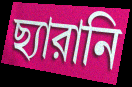
ছ্যারানি